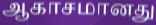
ஆகாசமானது